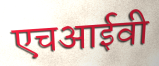
एचआईवी